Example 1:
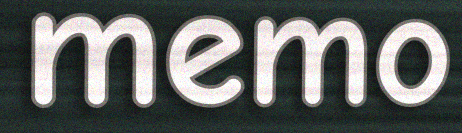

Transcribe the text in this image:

memo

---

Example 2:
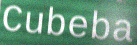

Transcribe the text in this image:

Cubeba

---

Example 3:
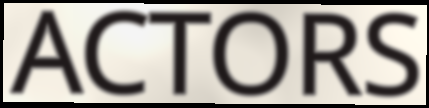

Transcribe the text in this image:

ACTORS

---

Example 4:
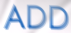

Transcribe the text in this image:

ADD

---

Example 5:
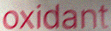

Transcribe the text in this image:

oxidant